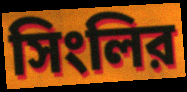
সিংলির